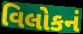
વિલોકનં